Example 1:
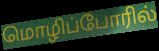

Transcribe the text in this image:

மொழிப்போரில்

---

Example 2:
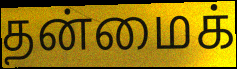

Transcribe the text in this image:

தன்மைக்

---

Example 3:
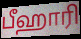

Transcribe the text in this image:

பீஹாரி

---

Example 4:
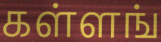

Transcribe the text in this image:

கள்ளங்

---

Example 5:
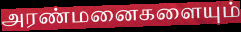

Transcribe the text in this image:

அரண்மனைகளையும்